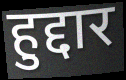
हुद्दार